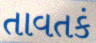
તાવતકં